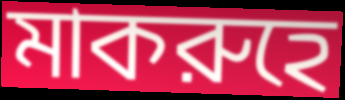
মাকরুহে